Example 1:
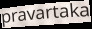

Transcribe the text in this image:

pravartaka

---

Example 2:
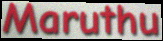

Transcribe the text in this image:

Maruthu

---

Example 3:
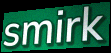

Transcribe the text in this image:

smirk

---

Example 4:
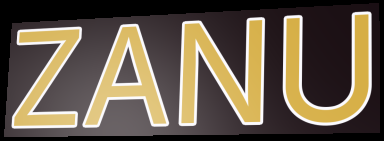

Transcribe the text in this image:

ZANU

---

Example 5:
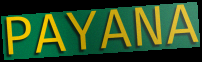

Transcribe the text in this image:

PAYANA